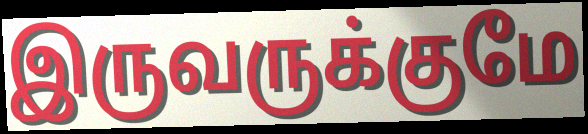
இருவருக்குமே